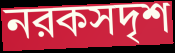
নরকসদৃশ